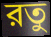
রতু